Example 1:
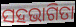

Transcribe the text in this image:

ସହଭାଗିତା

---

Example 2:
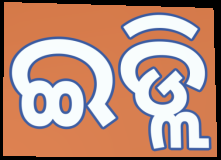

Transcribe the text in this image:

ଇଡ୍ଲି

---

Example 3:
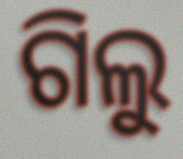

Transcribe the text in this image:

ଗିଲୁ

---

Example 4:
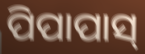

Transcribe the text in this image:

ପିପାପାସ୍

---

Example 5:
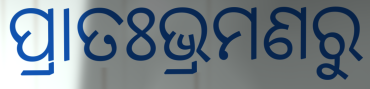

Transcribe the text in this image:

ପ୍ରାତଃଭ୍ରମଣରୁ